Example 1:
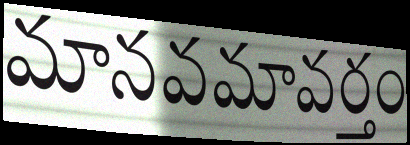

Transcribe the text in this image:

మానవమావర్తం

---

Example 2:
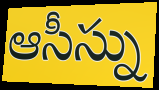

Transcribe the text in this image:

ఆసీస్ను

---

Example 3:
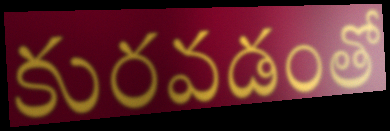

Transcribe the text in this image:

కురవడంతో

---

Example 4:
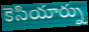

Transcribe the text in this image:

కెసియార్ను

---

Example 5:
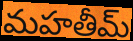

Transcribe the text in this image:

మహతీమ్